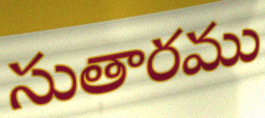
సుతారము